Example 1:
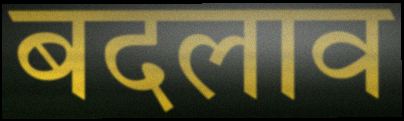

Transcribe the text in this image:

बदलाव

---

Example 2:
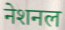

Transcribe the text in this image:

नेशनल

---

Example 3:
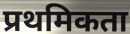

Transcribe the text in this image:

प्रथमिकता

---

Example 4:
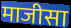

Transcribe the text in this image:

माजीसा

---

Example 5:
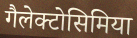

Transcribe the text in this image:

गैलेक्टोसिमिया